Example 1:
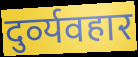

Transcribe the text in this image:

दुर्व्‍यवहार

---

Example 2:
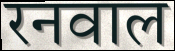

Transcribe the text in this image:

रनवाल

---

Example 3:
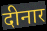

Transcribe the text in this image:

दीनार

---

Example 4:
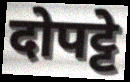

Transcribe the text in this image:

दोपट्टे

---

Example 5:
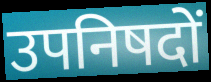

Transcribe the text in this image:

उपनिषदों